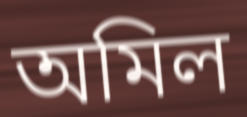
অমিল